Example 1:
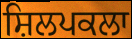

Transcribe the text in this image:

ਸ਼ਿਲਪਕਲਾ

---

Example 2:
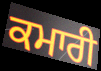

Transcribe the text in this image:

ਕਮਾਰੀ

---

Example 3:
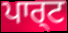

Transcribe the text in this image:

ਪਾਰ੍ਟ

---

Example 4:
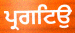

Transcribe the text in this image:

ਪ੍ਰਗਟਿਉ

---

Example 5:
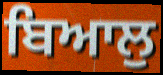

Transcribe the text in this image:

ਬਿਆਲੁ